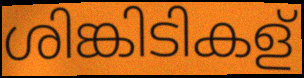
ശിങ്കിടികള്